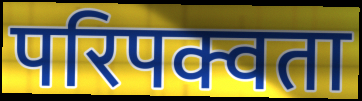
परिपक्वता